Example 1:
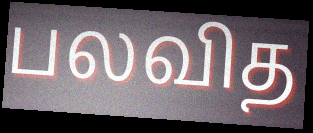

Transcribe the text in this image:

பலவித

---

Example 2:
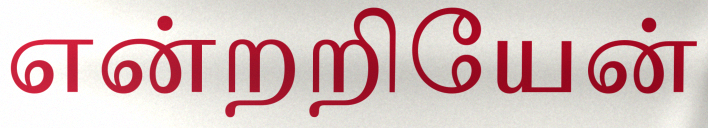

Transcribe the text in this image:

என்றறியேன்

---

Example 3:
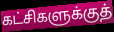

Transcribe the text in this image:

கட்சிகளுக்குத்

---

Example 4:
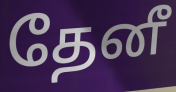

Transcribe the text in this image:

தேனீ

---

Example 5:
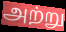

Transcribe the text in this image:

அற்று